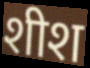
शीश